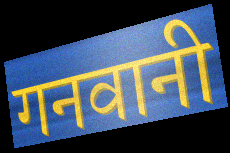
गनवानी